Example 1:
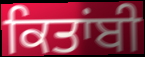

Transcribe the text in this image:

ਕਿਤਾਂਬੀ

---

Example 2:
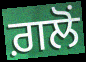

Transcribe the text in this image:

ਗ਼ਲੋਂ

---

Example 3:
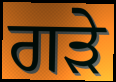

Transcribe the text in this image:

ਗੜੇ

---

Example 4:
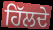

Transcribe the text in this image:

ਹਿੱਲਦੇ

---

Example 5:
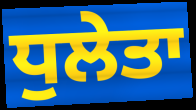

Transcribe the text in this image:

ਧੁਲੇਤਾ